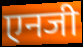
एनजी